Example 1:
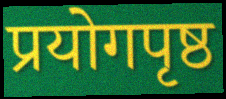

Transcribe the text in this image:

प्रयोगपृष्ठ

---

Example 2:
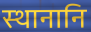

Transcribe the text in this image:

स्थानानि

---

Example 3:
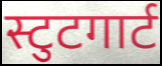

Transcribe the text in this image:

स्टुटगार्ट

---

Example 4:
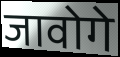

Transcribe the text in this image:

जावोगे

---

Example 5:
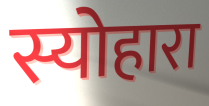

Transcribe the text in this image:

स्योहारा